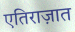
एतिराज़ात